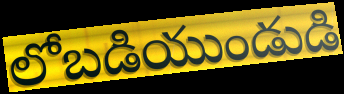
లోబడియుండుడి